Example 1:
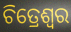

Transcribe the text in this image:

ଚିତ୍ରେଶ୍ୱର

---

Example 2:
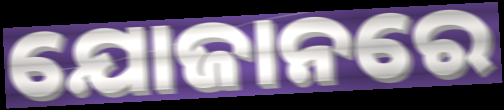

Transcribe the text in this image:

ଯୋଜାନରେ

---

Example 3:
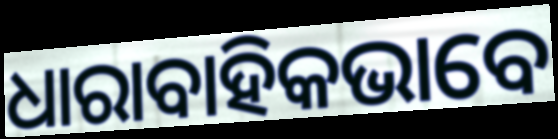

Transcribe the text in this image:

ଧାରାବାହିକଭାବେ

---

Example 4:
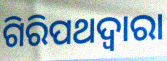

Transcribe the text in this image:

ଗିରିପଥଦ୍ୱାରା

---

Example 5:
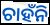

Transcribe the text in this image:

ଚାହଁନି